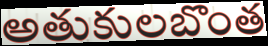
అతుకులబొంత